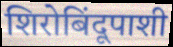
शिरोबिंदूपाशी